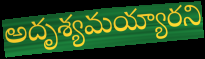
అదృశ్యమయ్యారని